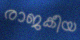
രാജകീയ